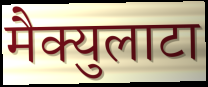
मैक्युलाटा